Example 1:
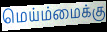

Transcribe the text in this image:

மெய்ம்மைக்கு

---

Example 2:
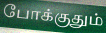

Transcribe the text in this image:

போக்குதும்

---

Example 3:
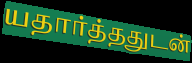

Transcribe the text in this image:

யதார்த்ததுடன்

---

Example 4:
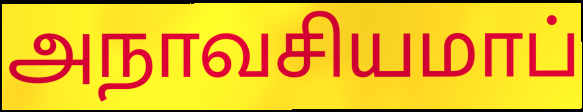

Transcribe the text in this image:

அநாவசியமாப்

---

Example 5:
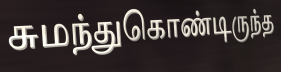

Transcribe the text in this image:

சுமந்துகொண்டிருந்த